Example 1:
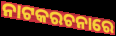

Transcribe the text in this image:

ନାଟକରଚନାରେ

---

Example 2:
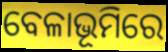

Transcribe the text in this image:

ବେଳାଭୂମିରେ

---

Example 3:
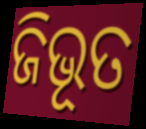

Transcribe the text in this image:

ଜିଭୂତ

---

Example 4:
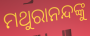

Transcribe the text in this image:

ମଥୁରାନନ୍ଦଙ୍କୁ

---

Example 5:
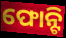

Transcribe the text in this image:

ଫୋନ୍ଟି